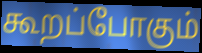
கூறப்போகும்